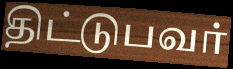
திட்டுபவர்